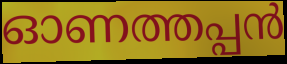
ഓണത്തപ്പൻ